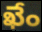
ఖేం